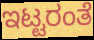
ಇಟ್ಟರಂತೆ